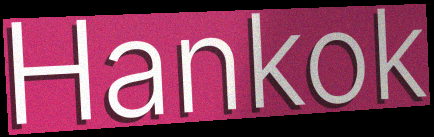
Hankok